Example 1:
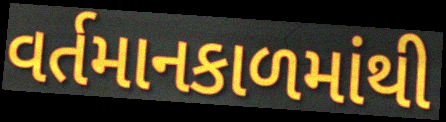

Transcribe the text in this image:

વર્તમાનકાળમાંથી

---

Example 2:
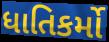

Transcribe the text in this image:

ધાતિકર્મો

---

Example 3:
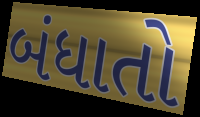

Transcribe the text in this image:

બંધાતો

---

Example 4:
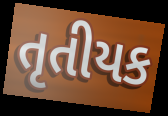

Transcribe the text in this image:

તૃતીયક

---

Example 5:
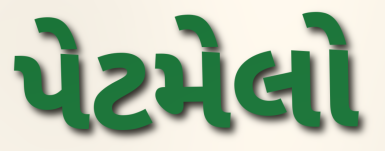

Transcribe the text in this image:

પેટમેલો